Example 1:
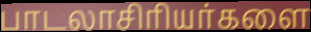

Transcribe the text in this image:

பாடலாசிரியர்களை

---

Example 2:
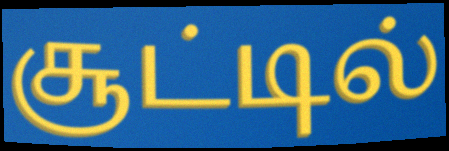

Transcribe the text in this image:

சூட்டில்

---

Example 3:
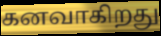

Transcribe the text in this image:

கனவாகிறது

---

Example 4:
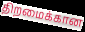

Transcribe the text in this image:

திறமைக்கான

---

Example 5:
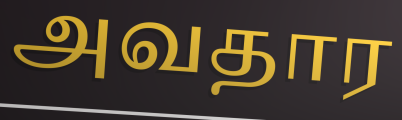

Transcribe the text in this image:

அவதார